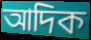
আদিক